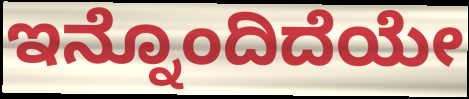
ಇನ್ನೊಂದಿದೆಯೇ